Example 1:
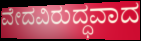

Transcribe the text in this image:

ವೇದವಿರುದ್ಧವಾದ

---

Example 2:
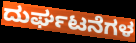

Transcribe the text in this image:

ದುರ್ಘಟನೆಗಳ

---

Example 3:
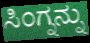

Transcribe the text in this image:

ಸಿಂಗ್ನನ್ನು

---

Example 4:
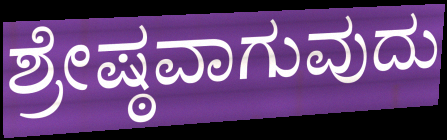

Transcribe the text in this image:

ಶ್ರೇಷ್ಠವಾಗುವುದು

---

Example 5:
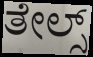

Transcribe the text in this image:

ತೇಲ್ಸ್